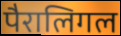
पैरालिगल